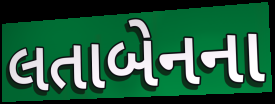
લતાબેનના